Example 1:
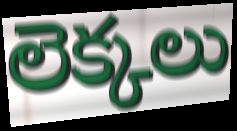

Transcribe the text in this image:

లెక్కలు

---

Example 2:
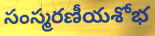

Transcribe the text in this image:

సంస్మరణీయశోభ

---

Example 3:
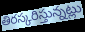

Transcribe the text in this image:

తిరస్కరిస్తున్నట్లు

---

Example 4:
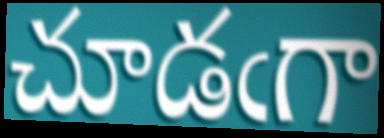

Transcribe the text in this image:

చూడఁగా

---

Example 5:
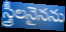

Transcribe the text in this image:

స్త్రీలనైనను